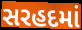
સરહદમાં